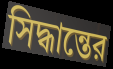
সিদ্ধান্তের